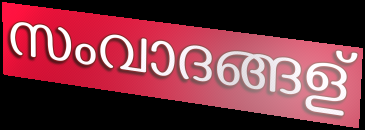
സംവാദങ്ങള്